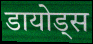
डायोड्स